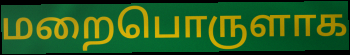
மறைபொருளாக